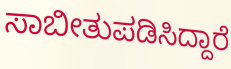
ಸಾಬೀತುಪಡಿಸಿದ್ದಾರೆ